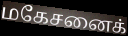
மகேசனைக்